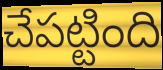
చేపట్టింది